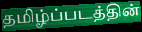
தமிழ்ப்படத்தின்